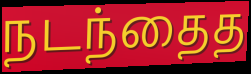
நடந்தைத